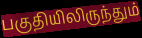
பகுதியிலிருந்தும்